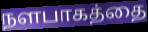
நளபாகத்தை